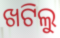
ଖଟିଲୁ